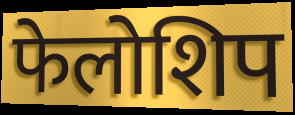
फेलोशिप